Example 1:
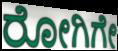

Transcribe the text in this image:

ರೋಗಿಗೇ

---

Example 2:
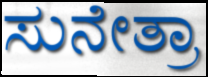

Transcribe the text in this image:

ಸುನೇತ್ರಾ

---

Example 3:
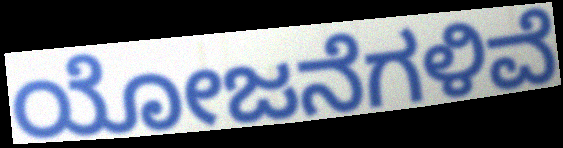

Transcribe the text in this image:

ಯೋಜನೆಗಳಿವೆ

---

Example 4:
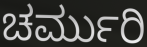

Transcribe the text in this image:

ಚರ್ಮುರಿ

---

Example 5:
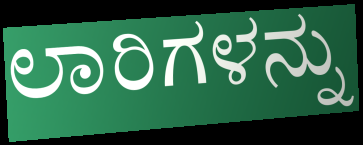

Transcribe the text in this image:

ಲಾರಿಗಳನ್ನು